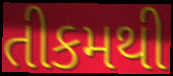
તીકમથી